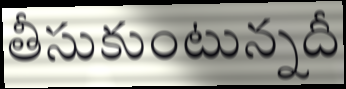
తీసుకుంటున్నదీ